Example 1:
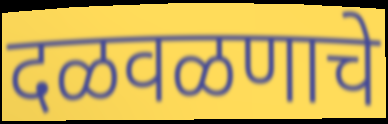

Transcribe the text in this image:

दळवळणाचे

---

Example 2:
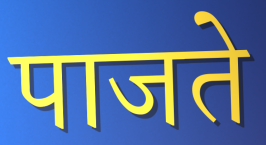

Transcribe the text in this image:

पाजते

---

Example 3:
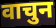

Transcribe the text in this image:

वाचुन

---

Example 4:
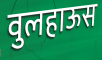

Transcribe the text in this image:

वुलहाऊस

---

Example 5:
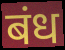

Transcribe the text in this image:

बंध